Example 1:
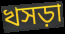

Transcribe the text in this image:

খসড়া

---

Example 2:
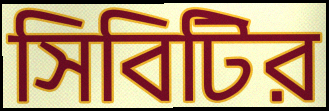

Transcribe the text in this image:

সিবিটির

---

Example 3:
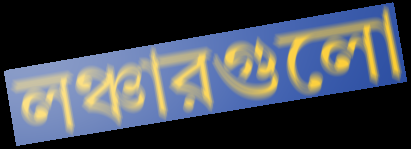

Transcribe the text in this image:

লঞ্চারগুলো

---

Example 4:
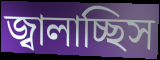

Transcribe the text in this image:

জ্বালাচ্ছিস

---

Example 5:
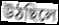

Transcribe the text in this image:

উঠছিলে